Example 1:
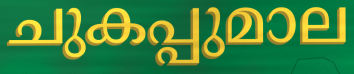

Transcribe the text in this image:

ചുകപ്പുമാല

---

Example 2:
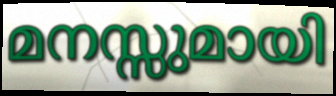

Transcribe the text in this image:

മനസ്സുമായി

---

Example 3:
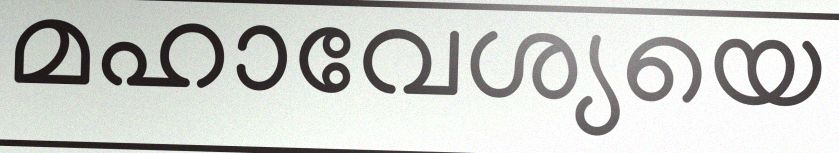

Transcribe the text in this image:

മഹാവേശ്യയെ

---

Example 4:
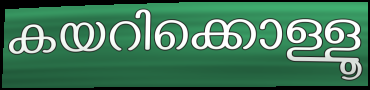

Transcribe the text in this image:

കയറിക്കൊള്ളൂ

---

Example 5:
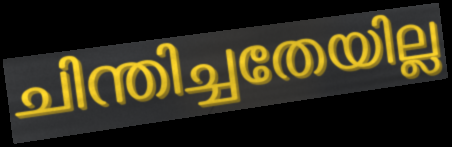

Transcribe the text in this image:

ചിന്തിച്ചതേയില്ല